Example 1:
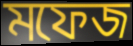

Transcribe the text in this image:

মফেজ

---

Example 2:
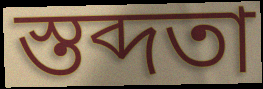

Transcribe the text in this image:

স্তব্দতা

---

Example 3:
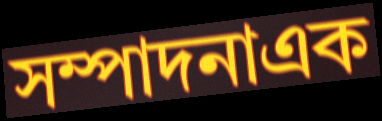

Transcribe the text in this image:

সম্পাদনাএক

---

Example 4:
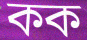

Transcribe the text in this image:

কক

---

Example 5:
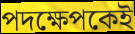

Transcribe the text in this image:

পদক্ষেপকেই